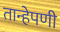
तान्हेपणी